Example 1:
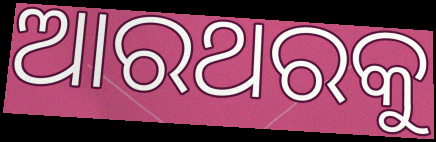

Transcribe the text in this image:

ଆରଥରକୁ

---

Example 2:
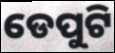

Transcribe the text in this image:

ଡେପୁଟି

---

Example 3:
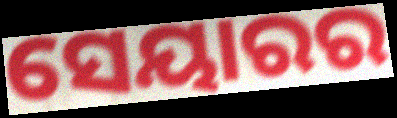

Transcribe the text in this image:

ସେୟାରର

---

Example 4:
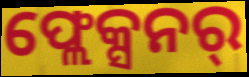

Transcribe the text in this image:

ଫ୍ଲେକ୍ସନର୍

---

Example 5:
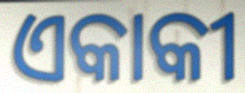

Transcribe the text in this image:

ଏକାକୀ